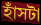
হাঁসটা